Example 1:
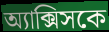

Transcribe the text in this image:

অ্যাক্সিসকে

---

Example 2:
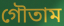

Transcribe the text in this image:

গৌতাম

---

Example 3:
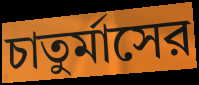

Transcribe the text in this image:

চাতুর্মাসের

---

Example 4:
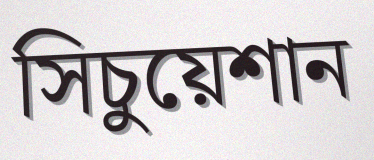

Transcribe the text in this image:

সিচুয়েশান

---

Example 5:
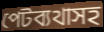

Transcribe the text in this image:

পেটব্যথাসহ